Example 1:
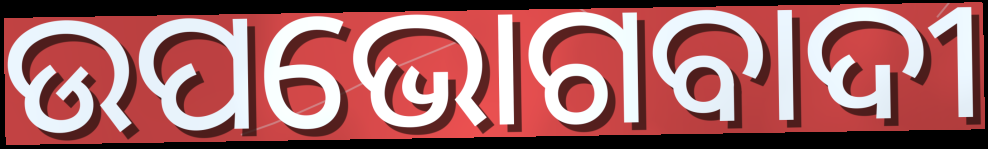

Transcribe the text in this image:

ଉପଭୋଗବାଦୀ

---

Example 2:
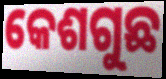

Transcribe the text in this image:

କେଶଗୁଛ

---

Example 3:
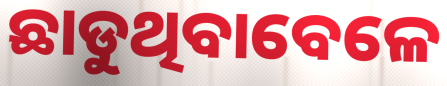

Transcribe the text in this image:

ଛାଡୁଥିବାବେଳେ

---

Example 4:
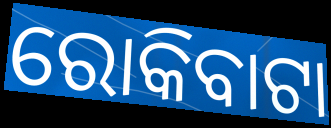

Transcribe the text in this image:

ରୋକିବାଟା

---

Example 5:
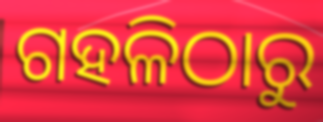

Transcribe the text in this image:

ଗହଳିଠାରୁ